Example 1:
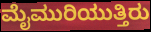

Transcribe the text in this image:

ಮೈಮುರಿಯುತ್ತಿರು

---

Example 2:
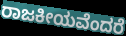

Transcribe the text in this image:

ರಾಜಕೀಯವೆಂದರೆ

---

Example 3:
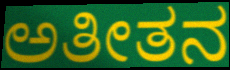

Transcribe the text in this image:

ಅತೀತನ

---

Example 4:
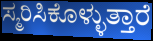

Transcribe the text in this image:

ಸ್ಮರಿಸಿಕೊಳ್ಳುತ್ತಾರೆ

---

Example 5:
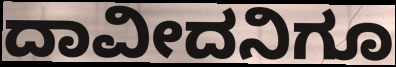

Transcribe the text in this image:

ದಾವೀದನಿಗೂ